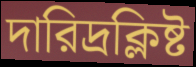
দারিদ্রক্লিষ্ট